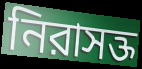
নিরাসক্ত